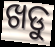
ଖଡୁ